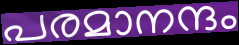
പരമാനന്ദം